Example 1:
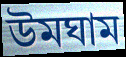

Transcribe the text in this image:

উমঘাম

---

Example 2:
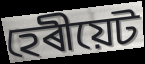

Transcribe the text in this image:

হেৰীয়েট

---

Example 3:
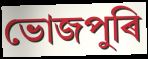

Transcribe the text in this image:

ভোজপুৰি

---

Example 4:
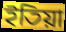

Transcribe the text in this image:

ইতিয়া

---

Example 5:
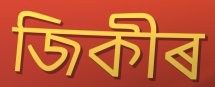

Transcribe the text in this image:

জিকীৰ